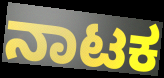
ನಾಟಕ